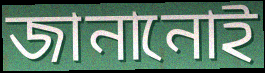
জানানোই